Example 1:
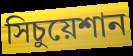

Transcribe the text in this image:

সিচুয়েশান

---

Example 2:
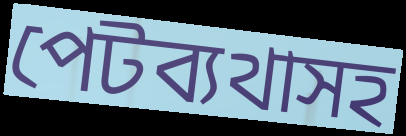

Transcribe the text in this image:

পেটব্যথাসহ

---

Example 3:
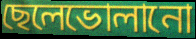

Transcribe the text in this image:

ছেলেভোলানো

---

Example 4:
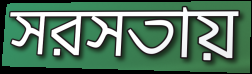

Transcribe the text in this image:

সরসতায়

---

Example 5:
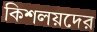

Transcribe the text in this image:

কিশলয়দের